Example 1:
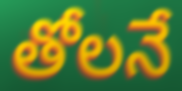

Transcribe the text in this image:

తోలనే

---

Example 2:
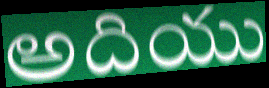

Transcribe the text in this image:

అదియు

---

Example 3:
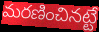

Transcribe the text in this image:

మరణించినట్టే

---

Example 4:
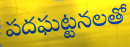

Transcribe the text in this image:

పదఘట్టనలతో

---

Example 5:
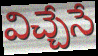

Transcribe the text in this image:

విచ్చేసే